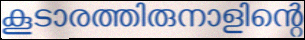
കൂടാരത്തിരുനാളിന്റെ